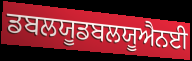
ਡਬਲਯੂਡਬਲਯੂਐਨਈ